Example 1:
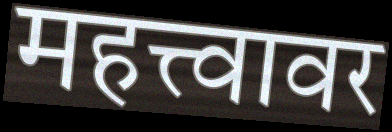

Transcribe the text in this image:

महत्त्वावर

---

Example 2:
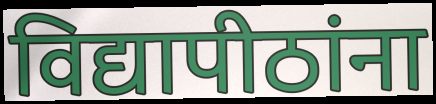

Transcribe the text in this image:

विद्यापीठांना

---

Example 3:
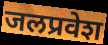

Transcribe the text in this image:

जलप्रवेश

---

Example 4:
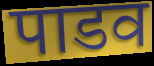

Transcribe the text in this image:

पाडव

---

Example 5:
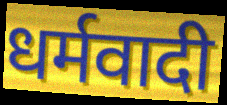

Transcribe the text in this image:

धर्मवादी